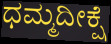
ಧಮ್ಮದೀಕ್ಷೆ